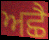
ਅਛੈ